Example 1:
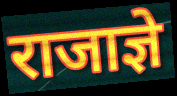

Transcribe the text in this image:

राजाज्ञे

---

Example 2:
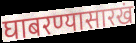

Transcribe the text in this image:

घाबरण्यासारखं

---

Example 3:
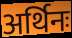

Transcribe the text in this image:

अर्थिनः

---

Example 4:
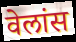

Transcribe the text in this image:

वेलांस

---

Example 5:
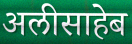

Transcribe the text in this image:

अलीसाहेब